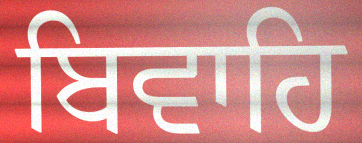
ਬਿਵਾਹਿ